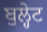
ਬੁਲ੍ਹੇਟ